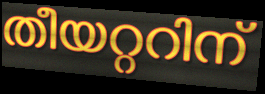
തീയറ്ററിന്